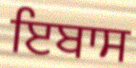
ਇਬਾਸ